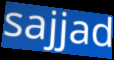
sajjad